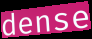
dense